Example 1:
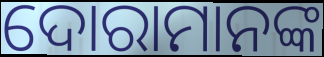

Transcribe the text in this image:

ଦୋରାମାନଙ୍କ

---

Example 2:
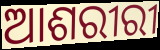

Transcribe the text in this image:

ଆଶରୀରୀ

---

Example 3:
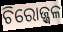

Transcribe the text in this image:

ଚିରୋଜ୍ଜ୍ଵଳ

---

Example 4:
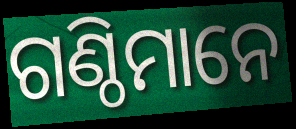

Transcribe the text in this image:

ଗଣ୍ଠିମାନେ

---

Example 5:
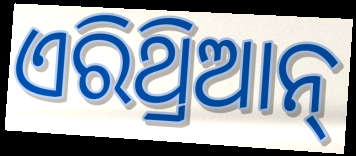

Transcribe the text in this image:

ଏରିଥ୍ରିଆନ୍